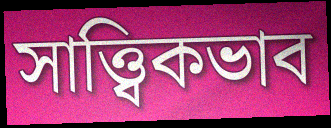
সাত্ত্বিকভাব